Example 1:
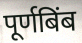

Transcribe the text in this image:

पूर्णबिंब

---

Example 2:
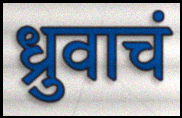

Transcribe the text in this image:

ध्रुवाचं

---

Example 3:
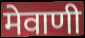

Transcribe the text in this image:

मेवाणी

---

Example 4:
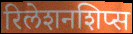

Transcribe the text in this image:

रिलेशनशिप्स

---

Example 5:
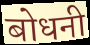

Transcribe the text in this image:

बोधनी